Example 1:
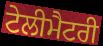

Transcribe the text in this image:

ਟੇਲੀਮੈਟਰੀ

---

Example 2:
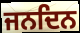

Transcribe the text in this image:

ਜਨਦਿਨ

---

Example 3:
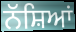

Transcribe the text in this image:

ਨੱਸ਼ਿਆਂ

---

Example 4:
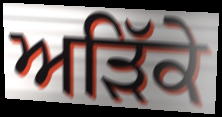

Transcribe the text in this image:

ਅੜਿੱਕੇ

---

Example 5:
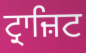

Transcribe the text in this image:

ਟ੍ਰਾਜ਼ਿਟ